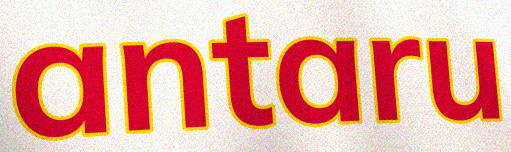
antaru